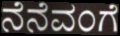
ನೆನೆವಂಗೆ